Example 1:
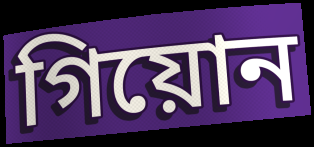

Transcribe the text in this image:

গিয়োন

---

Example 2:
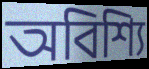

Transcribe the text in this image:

অবিশ্যি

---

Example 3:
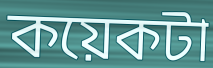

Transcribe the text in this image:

কয়েকটা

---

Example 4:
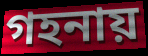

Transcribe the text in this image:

গহনায়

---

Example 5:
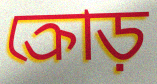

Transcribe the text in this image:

ক্রোড়